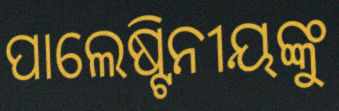
ପାଲେଷ୍ଟିନୀୟଙ୍କୁ